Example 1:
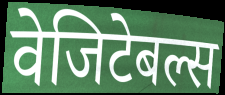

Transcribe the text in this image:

वेजिटेबल्स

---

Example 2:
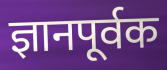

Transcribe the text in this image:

ज्ञानपूर्वक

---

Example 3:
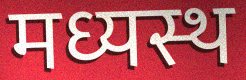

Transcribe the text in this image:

मध्यस्थ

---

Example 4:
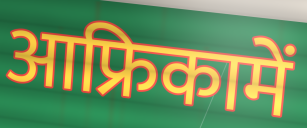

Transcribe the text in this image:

आफ्रिकामें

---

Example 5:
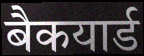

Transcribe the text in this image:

बैकयार्ड